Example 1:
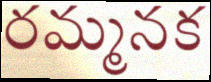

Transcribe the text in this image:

రమ్మనక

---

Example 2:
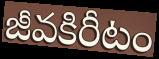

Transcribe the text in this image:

జీవకిరీటం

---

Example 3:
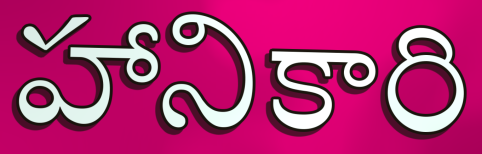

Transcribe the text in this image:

హానికారి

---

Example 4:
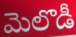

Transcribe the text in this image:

మెలొడీ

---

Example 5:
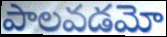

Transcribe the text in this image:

పాలవడమో